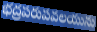
భద్రపరుపవలయును